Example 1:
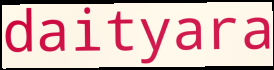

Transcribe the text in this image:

daityara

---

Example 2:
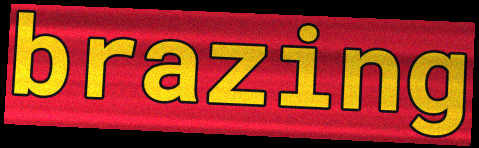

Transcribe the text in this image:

brazing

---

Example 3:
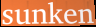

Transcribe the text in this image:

sunken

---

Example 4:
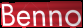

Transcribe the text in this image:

Benno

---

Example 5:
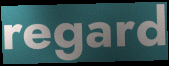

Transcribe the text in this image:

regard